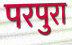
परपुरा